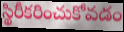
స్థిరీకరించుకోవడం